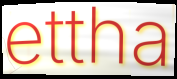
ettha